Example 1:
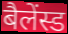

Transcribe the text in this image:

बैलेंस्ड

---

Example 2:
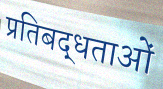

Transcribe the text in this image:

प्रतिबद्धताओं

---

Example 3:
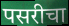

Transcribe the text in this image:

पसरीचा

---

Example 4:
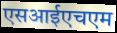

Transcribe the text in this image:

एसआईएचएम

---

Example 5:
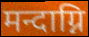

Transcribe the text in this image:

मन्दाग्नि